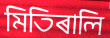
মিতিৰালি